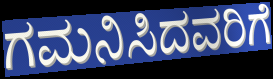
ಗಮನಿಸಿದವರಿಗೆ